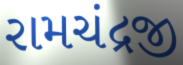
રામચંદ્રજી